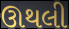
ઊથલી